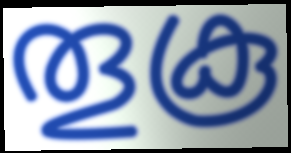
തൂകൂ